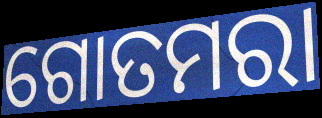
ଗୋତମରା